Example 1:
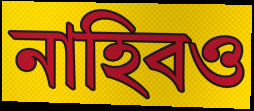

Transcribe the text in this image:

নাহিবও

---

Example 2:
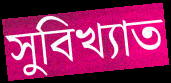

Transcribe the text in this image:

সুবিখ্যাত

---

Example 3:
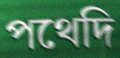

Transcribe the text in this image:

পথেদি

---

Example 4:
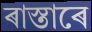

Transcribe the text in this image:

ৰাস্তাৰে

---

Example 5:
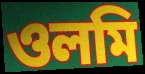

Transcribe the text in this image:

ওলমি